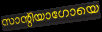
സാന്റിയാഗോയെ